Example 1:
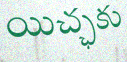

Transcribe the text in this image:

యిచ్ఛకు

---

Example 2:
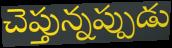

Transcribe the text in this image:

చెప్తున్నప్పుడు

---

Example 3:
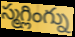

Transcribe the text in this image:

స్మగ్లింగ్ను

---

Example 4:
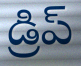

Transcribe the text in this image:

డ్రిప్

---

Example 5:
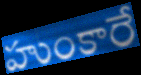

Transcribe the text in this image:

హుంకారే